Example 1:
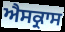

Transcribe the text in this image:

ਐਸਕ੍ਰਾਸ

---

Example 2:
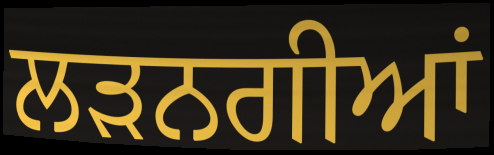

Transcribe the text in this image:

ਲੜਨਗੀਆਂ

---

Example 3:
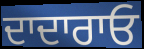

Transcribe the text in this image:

ਦਾਦਾਰਾਓ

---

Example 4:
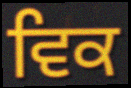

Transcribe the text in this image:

ਵਿਕ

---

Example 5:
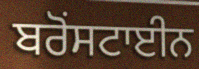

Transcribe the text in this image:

ਬਰੋਂਸਟਾਈਨ